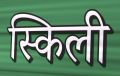
स्किली